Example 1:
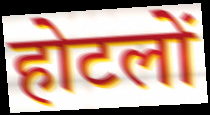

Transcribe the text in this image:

होटलों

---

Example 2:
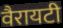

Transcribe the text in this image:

वैरायटी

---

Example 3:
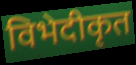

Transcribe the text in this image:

विभेदीकृत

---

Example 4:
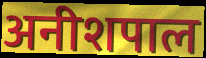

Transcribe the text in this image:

अनीशपाल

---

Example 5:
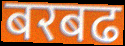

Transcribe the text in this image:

बरबढ